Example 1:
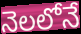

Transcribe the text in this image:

నెలలోనే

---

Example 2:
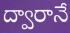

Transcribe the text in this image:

ద్వారానే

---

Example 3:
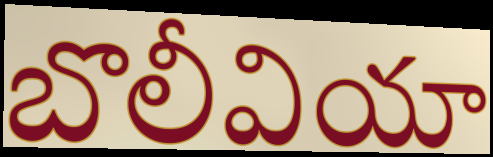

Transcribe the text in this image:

బొలీవియా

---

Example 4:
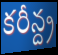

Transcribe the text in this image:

కరీన్ద్ర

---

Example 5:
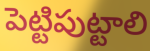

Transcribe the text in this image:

పెట్టిపుట్టాలి